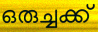
ഒരുച്ചക്ക്